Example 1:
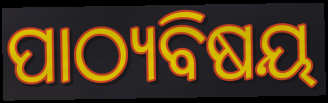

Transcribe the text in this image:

ପାଠ୍ୟବିଷୟ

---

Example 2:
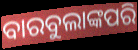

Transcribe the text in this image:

ବାରବୁଲାଙ୍କପରି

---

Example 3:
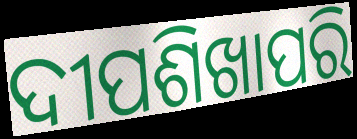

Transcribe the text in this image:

ଦୀପଶିଖାପରି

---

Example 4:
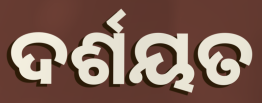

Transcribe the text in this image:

ଦର୍ଶୟତ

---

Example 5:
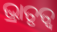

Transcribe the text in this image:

ଭ୍ରାତୃତ୍ଵ